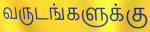
வருடங்களுக்கு